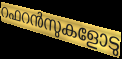
റഫറൻസുകളോടു